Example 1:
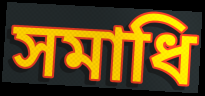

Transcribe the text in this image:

সমাধি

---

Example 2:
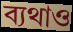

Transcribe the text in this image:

ব্যথাও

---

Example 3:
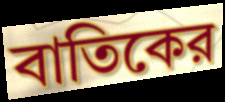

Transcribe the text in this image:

বাতিকের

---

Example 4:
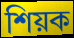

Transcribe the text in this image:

শিয়ক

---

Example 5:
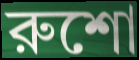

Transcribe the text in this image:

রুশো